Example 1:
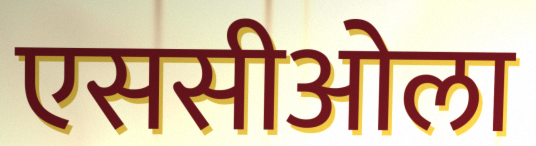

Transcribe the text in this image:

एससीओला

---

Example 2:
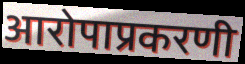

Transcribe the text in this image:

आरोपाप्रकरणी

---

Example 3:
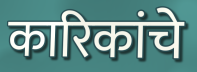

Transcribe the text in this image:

कारिकांचे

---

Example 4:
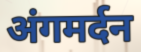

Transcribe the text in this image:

अंगमर्दन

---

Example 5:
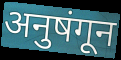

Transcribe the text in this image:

अनुषंगून